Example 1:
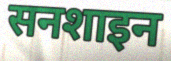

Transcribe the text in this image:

सनशाइन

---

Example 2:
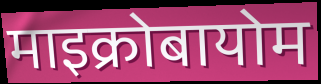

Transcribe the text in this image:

माइक्रोबायोम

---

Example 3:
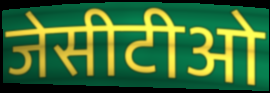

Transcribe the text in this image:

जेसीटीओ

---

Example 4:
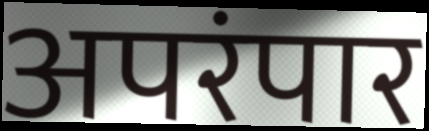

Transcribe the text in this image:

अपरंपार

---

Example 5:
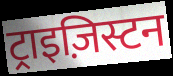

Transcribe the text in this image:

ट्राइज़िस्टन